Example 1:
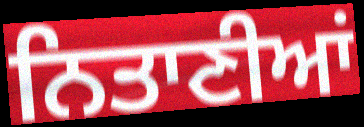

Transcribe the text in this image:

ਨਿਤਾਣੀਆਂ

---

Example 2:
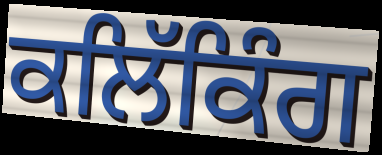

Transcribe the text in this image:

ਕਲਿੱਕਿੰਗ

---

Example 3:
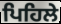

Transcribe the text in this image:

ਪਿਹਿਲੇ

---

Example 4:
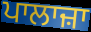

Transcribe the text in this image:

ਪਾਲਾਜ਼ਾ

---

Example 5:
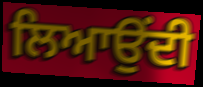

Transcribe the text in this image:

ਲਿਆਉਂਦੀ